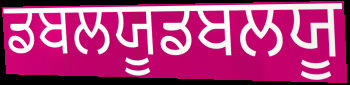
ਡਬਲਯੂਡਬਲਯੂ